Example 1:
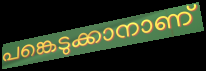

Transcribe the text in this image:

പങ്കെടുക്കാനാണ്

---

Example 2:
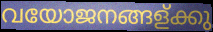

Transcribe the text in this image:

വയോജനങ്ങള്ക്കു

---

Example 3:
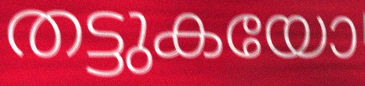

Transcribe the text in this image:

തട്ടുകയോ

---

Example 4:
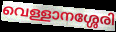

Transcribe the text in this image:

വെള്ളാനശ്ശേരി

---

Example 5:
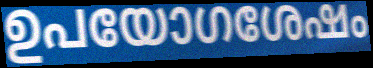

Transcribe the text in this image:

ഉപയോഗശേഷം